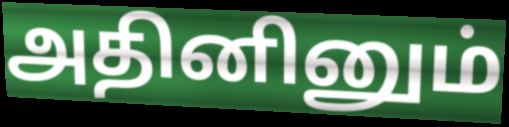
அதினினும்